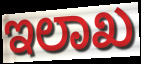
ಇಲಾಖ